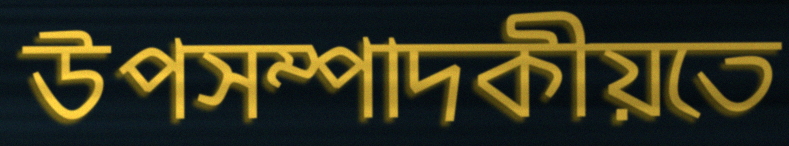
উপসম্পাদকীয়তে